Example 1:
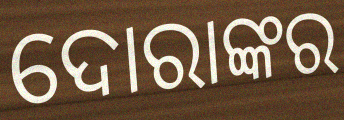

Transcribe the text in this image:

ଦୋରାଙ୍କର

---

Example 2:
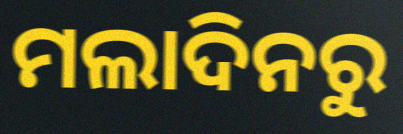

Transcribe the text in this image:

ମଲାଦିନରୁ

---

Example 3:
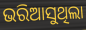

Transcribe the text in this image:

ଭରିଆସୁଥିଲା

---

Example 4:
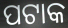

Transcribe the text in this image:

ପଟାକ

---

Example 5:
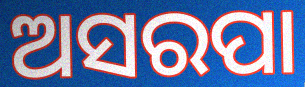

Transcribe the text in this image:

ଅସରପା